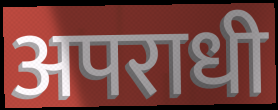
अपराधी